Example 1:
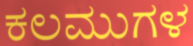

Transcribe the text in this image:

ಕಲಮುಗಳ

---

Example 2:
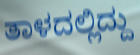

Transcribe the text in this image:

ತಾಳದಲ್ಲಿದ್ದು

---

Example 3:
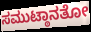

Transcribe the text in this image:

ಸಮುಟ್ಠಾನತೋ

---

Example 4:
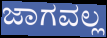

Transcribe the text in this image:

ಜಾಗವಲ್ಲ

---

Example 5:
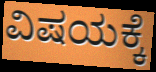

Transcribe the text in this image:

ವಿಷಯಕ್ಕೆ